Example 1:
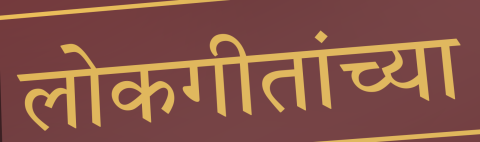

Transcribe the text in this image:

लोकगीतांच्या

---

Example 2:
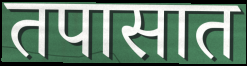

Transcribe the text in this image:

तपासात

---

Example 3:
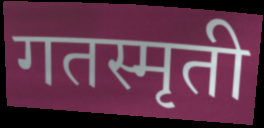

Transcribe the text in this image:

गतस्मृती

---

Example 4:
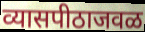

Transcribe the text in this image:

व्यासपीठाजवळ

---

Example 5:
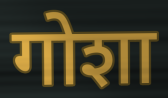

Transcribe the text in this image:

गोशा